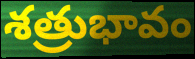
శత్రుభావం